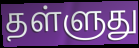
தள்ளுது